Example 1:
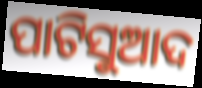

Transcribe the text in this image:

ପାଟିସୁଆଦ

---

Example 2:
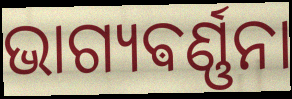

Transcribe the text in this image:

ଭାଗ୍ୟଵର୍ଣ୍ଣନା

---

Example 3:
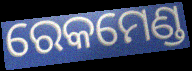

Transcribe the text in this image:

ରେକମେଣ୍ଡ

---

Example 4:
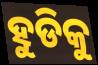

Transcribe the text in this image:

ହୁଡିକୁ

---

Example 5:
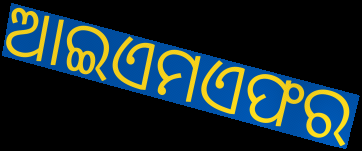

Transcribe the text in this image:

ଆଇଏମଏଫର